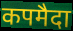
कपमैदा